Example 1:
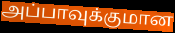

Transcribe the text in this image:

அப்பாவுக்குமான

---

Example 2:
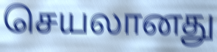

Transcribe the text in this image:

செயலானது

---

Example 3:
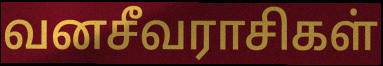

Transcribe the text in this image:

வனசீவராசிகள்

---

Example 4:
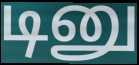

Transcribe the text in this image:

டினு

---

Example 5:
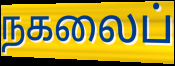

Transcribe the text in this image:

நகலைப்